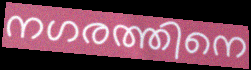
നഗരത്തിനെ